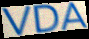
VDA